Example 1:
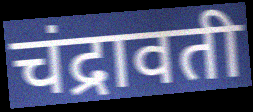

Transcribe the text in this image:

चंद्रावती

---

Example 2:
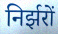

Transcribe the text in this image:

निर्झरों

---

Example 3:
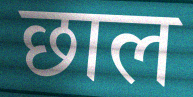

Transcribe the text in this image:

छाल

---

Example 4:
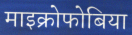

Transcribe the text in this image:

माइक्रोफोबिया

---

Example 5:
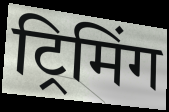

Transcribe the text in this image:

ट्रिमिंग